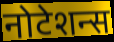
नोटेशन्स